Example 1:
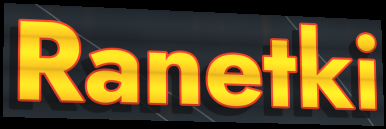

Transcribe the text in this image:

Ranetki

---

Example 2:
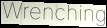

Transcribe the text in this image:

Wrenching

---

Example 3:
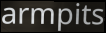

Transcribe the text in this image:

armpits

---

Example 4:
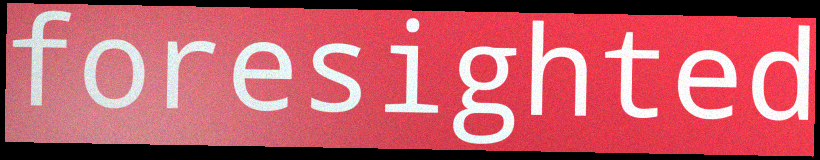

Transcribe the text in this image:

foresighted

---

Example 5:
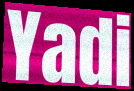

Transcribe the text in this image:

Yadi